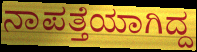
ನಾಪತ್ತೆಯಾಗಿದ್ದ